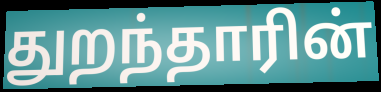
துறந்தாரின்